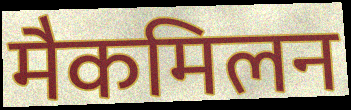
मैकमिलन